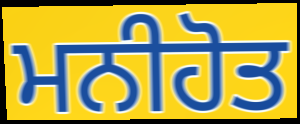
ਮਨੀਹੋਤ